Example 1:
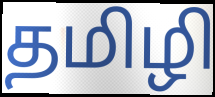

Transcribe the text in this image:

தமிழி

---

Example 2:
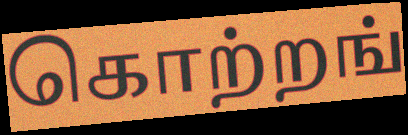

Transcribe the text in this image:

கொற்றங்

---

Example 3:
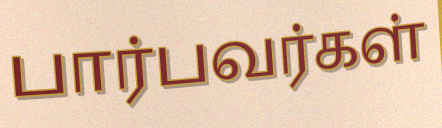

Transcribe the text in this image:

பார்பவர்கள்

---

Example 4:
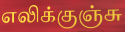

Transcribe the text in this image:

எலிக்குஞ்சு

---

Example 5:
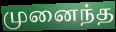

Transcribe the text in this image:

முனைந்த